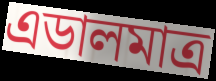
এডালমাত্ৰ